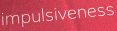
impulsiveness